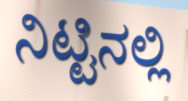
ನಿಟ್ಟಿನಲ್ಲಿ